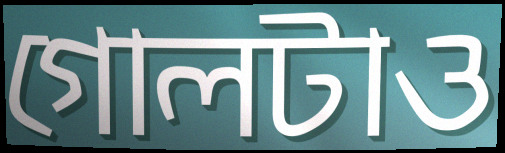
গোলটাও